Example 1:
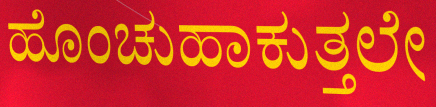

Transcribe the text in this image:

ಹೊಂಚುಹಾಕುತ್ತಲೇ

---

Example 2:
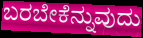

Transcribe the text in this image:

ಬರಬೇಕೆನ್ನುವುದು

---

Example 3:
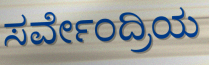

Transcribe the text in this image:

ಸರ್ವೇಂದ್ರಿಯ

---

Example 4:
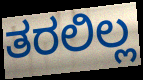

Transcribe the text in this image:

ತರಲಿಲ್ಲ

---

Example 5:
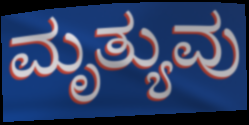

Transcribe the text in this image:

ಮೃತ್ಯುವು